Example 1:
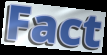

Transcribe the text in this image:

Fact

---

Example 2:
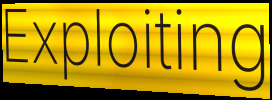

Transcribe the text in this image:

Exploiting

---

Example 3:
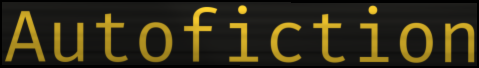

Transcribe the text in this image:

Autofiction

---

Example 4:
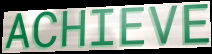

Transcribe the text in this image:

ACHIEVE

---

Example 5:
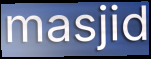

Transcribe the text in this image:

masjid